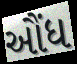
ઔંધ